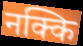
नक्कि